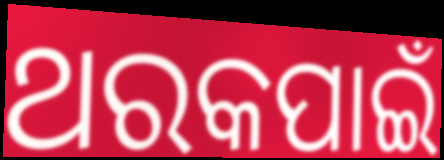
ଥରକପାଇଁ